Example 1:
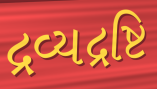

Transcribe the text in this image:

દ્રવ્યદ્રષ્ટિ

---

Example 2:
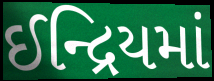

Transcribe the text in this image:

ઈન્દ્રિયમાં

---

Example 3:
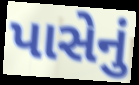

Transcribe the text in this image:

પાસેનું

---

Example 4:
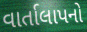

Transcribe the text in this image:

વાર્તાલાપનો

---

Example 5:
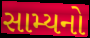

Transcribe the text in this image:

સામ્યનો